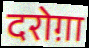
दरोग़ा